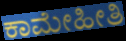
ಕಾಮೇಹೀತಿ